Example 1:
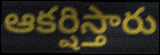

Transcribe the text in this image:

ఆకర్షిస్తారు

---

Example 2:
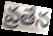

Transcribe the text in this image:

వ్రతేన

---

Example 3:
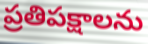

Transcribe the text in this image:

ప్రతిపక్షాలను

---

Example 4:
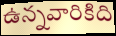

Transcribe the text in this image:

ఉన్నవారికిది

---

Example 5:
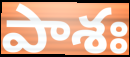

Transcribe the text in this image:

పాశః